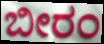
ಬೀರಂ